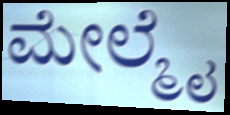
ಮೇಲ್ಮೈ